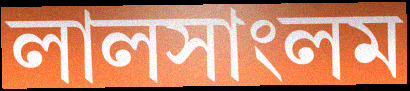
লালসাংলম